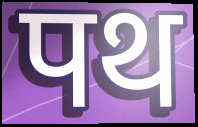
पथ